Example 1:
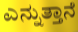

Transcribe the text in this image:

ಎನ್ನುತ್ತಾನೆ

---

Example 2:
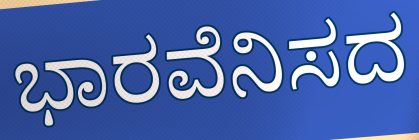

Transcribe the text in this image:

ಭಾರವೆನಿಸದ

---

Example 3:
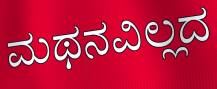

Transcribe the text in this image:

ಮಥನವಿಲ್ಲದ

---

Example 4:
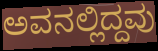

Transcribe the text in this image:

ಅವನಲ್ಲಿದ್ದವು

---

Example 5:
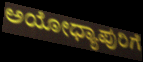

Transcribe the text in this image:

ಅಯೋಧ್ಯಾಪುರಿಗೆ